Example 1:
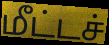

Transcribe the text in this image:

மீட்டச்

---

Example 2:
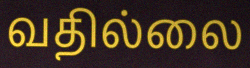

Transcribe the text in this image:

வதில்லை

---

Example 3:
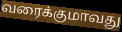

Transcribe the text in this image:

வரைக்குமாவது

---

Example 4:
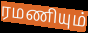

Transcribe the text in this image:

ரமணியும்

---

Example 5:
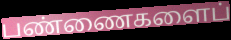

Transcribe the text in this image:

பண்ணைகளைப்